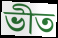
ভীত